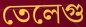
তেলেগু